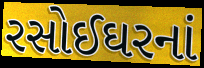
રસોઈઘરનાં